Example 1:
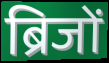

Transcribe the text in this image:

ब्रिजों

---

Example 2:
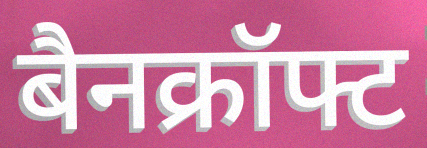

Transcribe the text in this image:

बैनक्रॉफ्ट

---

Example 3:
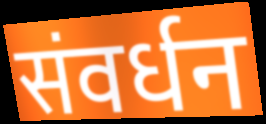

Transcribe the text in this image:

संवर्धन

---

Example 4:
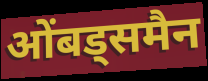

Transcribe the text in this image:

ओंबड्समैन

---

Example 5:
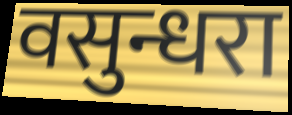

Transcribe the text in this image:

वसुन्धरा